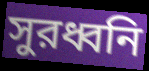
সুরধ্বনি